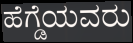
ಹೆಗ್ಡೆಯವರು